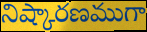
నిష్కారణముగా